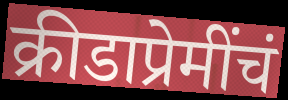
क्रीडाप्रेमींचं